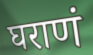
घराणं